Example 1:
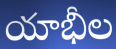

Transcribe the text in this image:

యాభీల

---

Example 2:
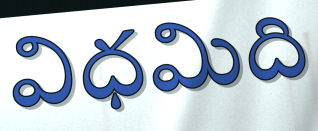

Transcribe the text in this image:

విధమిది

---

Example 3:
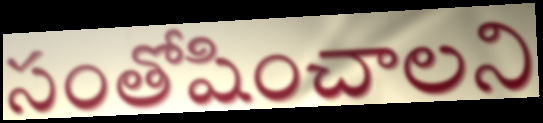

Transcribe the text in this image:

సంతోషించాలని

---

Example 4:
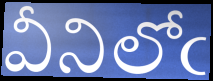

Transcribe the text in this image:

వీనిలోఁ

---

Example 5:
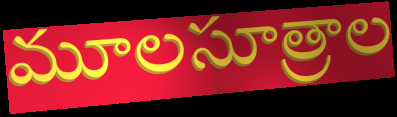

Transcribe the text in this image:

మూలసూత్రాల